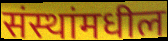
संस्थांमधील